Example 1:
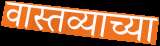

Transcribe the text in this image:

वास्तव्याच्या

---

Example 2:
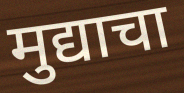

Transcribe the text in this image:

मुद्याचा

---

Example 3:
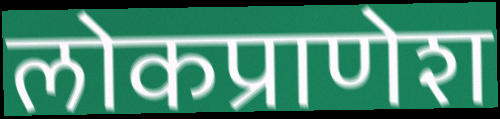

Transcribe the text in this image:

लोकप्राणेश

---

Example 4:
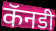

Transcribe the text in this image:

कॅनडी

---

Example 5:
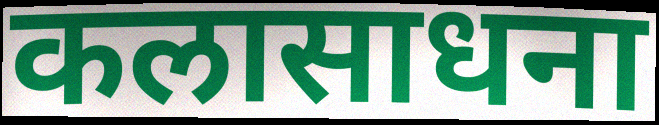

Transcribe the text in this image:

कलासाधना